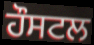
ਹੌਸਟਲ